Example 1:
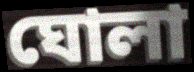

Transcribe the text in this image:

ঘোলা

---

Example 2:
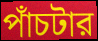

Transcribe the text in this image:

পাঁচটার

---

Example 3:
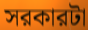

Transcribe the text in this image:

সরকারটা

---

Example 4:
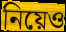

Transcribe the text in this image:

নিয়েও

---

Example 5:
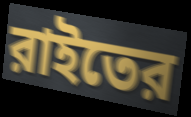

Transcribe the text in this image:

রাইতের